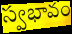
స్వభావం